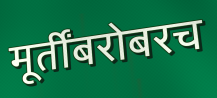
मूर्तींबरोबरच